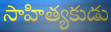
సాహిత్యకుడు